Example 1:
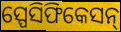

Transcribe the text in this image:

ସ୍ପେସିଫିକେସନ୍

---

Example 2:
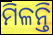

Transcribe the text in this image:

ମିଳନ୍ତି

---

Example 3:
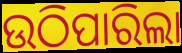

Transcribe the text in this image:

ଉଠିପାରିଲା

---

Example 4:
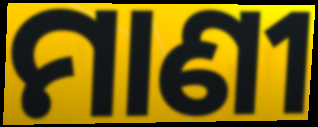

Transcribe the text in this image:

ମାଣୀ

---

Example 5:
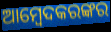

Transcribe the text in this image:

ଆମ୍ବେଦକରଙ୍କର